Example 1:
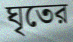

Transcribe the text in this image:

ঘৃতের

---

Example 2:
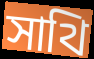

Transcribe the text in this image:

সাথি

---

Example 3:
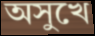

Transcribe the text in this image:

অসুখে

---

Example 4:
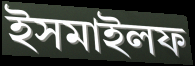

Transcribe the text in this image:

ইসমাইলফ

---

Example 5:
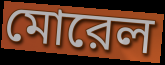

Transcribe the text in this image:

মোরেল